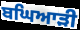
ਬਘਿਆੜੀ